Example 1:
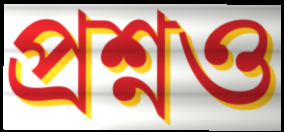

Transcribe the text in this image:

প্ৰশ্নও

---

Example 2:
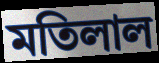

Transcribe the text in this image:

মতিলাল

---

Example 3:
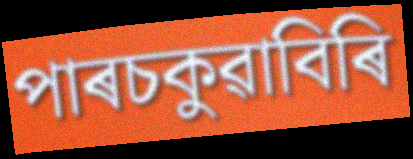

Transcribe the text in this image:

পাৰচকুৱাবিৰি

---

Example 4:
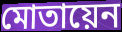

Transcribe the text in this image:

মোতায়েন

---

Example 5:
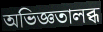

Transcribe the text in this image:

অভিজ্ঞতালব্ধ